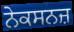
ਨੇਕਸਨਜ਼